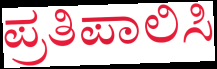
ಪ್ರತಿಪಾಲಿಸಿ